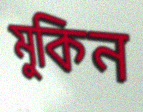
মুকিন